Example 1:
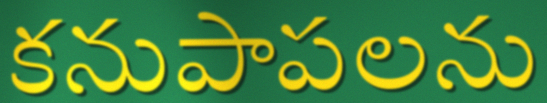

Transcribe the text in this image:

కనుపాపలను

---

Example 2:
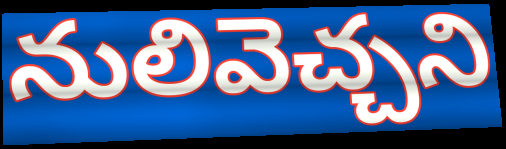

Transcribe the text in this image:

నులివెచ్చని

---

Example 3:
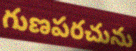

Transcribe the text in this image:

గుణపరచును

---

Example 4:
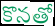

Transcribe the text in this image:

కొనతో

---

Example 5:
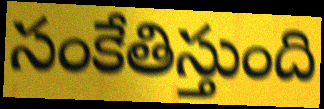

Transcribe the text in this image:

సంకేతిస్తుంది